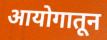
आयोगातून